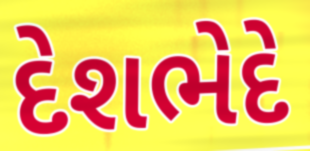
દેશભેદે